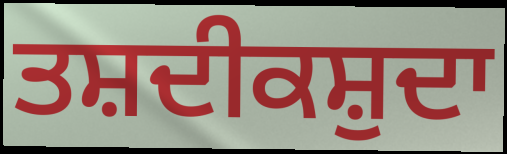
ਤਸ਼ਦੀਕਸ਼ੁਦਾ